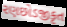
રણછોડજીકૃત